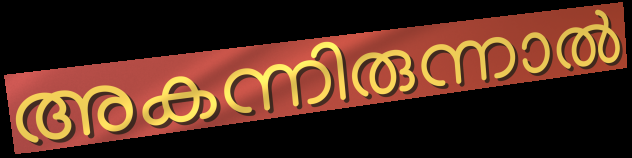
അകന്നിരുന്നാൽ